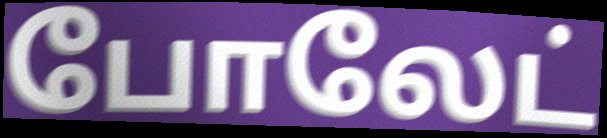
போலேட்